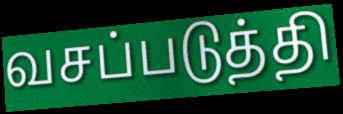
வசப்படுத்தி